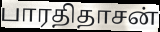
பாரதிதாசன்